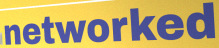
networked